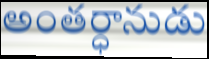
అంతర్ధానుడు